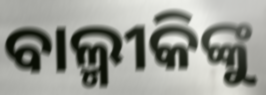
ବାଲ୍ମୀକିଙ୍କୁ